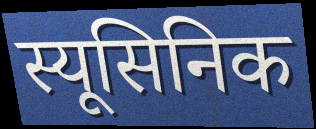
स्यूसिनिक